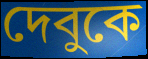
দেবুকে